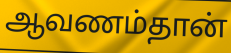
ஆவணம்தான்